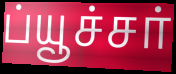
ப்யூச்சர்